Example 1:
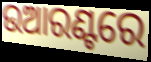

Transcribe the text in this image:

ଉଆରଣ୍ଟରେ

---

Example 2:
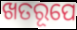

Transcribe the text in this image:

ଖତରୂପେ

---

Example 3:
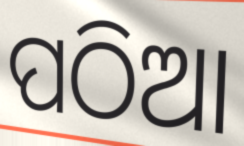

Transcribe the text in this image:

ପଠିଆ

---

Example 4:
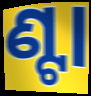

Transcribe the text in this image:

ଣ୍ଟା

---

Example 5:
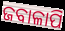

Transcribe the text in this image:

ଜବାଳାପି